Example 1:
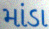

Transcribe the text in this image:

માંડા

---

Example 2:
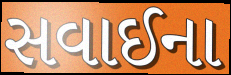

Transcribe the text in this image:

સવાઈના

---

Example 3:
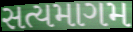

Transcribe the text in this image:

સત્યમાગમ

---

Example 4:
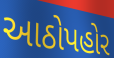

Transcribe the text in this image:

આઠોપહોર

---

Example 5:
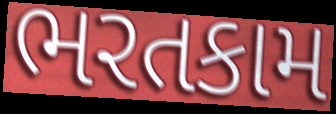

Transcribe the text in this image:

ભરતકામ